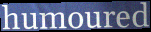
humoured